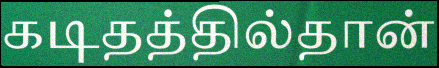
கடிதத்தில்தான்